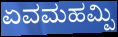
ಏವಮಹಮ್ಪಿ